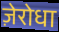
ज़ेरोधा